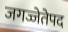
जगज्जेतेपद